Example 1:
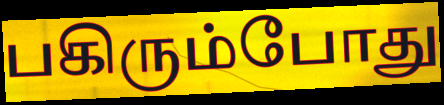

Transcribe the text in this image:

பகிரும்போது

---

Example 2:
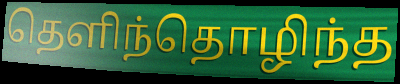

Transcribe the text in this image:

தெளிந்தொழிந்த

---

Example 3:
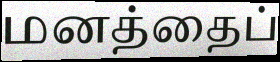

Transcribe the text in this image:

மனத்தைப்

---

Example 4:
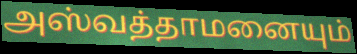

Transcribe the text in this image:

அஸ்வத்தாமனையும்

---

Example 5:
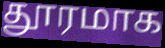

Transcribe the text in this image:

தூரமாக